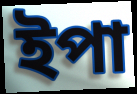
ইপা